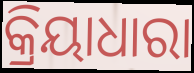
କ୍ରିୟାଧାରା